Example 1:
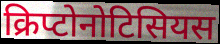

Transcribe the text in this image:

क्रिप्टोनोटिसियस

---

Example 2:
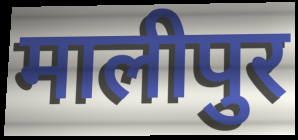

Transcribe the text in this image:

मालीपुर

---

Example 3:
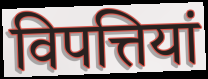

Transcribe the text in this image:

विपत्तियां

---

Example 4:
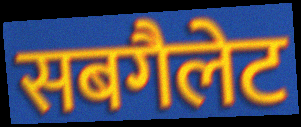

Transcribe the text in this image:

सबगैलेट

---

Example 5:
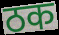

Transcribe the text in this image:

ठक